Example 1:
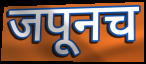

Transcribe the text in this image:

जपूनच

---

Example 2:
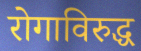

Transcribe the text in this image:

रोगाविरुद्ध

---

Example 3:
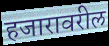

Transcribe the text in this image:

हजारावरील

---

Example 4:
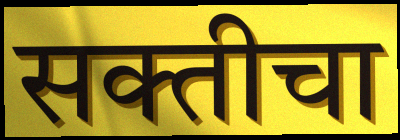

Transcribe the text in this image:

सक्‍तीचा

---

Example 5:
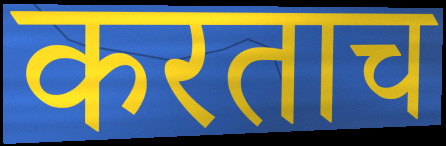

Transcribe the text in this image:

करताच